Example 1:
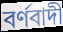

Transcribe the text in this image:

বর্ণবাদী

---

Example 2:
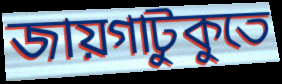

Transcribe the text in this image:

জায়গাটুকুতে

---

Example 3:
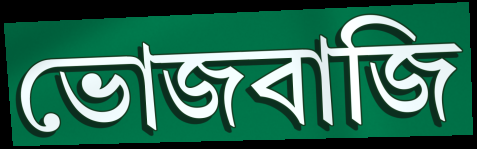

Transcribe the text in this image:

ভোজবাজি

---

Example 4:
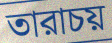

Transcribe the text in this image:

তারাচয়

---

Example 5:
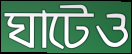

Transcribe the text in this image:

ঘাটেও